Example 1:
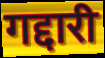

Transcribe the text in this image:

गद्दारी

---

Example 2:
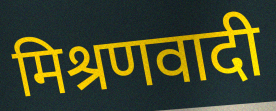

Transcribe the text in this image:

मिश्रणवादी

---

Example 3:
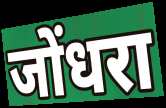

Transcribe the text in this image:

जोंधरा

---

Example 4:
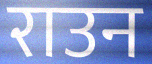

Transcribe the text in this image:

राउन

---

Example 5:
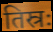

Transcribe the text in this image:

तिस्रः